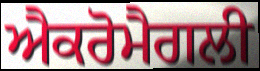
ਐਕਰੋਮੈਗਲੀ